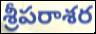
శ్రీపరాశర